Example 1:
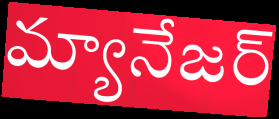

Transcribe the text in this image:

మ్యానేజర్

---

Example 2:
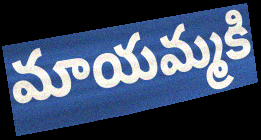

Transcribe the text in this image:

మాయమ్మకి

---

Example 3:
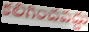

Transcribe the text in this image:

కలిగించవద్దు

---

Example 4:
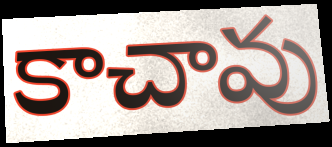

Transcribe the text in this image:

కాచావు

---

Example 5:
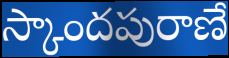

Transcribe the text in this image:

స్కాందపురాణే